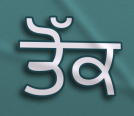
ਤੋੱਕ